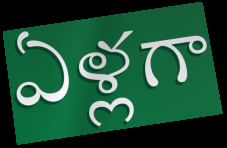
ఏళ్లగా